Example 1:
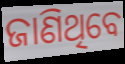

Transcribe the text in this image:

ଜାଣିଥିବେ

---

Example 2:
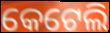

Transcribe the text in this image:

କେଟେଲି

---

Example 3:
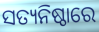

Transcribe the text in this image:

ସତ୍ୟନିଷ୍ଠାରେ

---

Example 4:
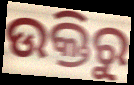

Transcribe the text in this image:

ଉକ୍ତିରୁ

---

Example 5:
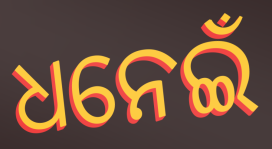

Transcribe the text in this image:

ଧନେଇଁ